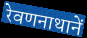
रेवणनाथानें